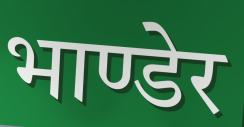
भाण्‍डेर